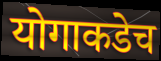
योगाकडेच